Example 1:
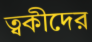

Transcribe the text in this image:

ত্বকীদের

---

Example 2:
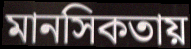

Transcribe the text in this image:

মানসিকতায়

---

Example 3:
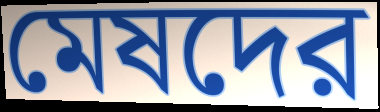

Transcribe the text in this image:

মেষদের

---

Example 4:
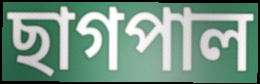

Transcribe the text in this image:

ছাগপাল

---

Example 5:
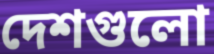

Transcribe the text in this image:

দেশগুলো